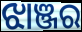
ଝାଞ୍ଜର